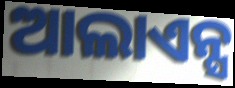
ଆଲାଏନ୍ସ